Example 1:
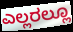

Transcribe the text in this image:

ಎಲ್ಲರಲ್ಲೂ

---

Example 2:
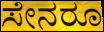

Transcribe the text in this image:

ಸೇನರೂ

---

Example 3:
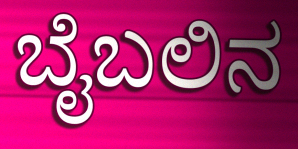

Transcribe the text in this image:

ಬೈಬಲಿನ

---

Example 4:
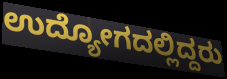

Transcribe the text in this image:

ಉದ್ಯೋಗದಲ್ಲಿದ್ದರು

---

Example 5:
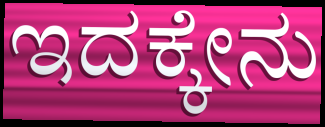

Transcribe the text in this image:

ಇದಕ್ಕೇನು